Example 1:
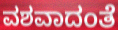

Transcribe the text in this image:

ವಶವಾದಂತೆ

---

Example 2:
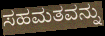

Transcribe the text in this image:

ಸಹಮತವನ್ನು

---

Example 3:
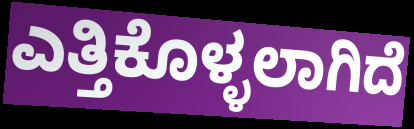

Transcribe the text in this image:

ಎತ್ತಿಕೊಳ್ಳಲಾಗಿದೆ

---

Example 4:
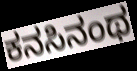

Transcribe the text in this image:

ಕನಸಿನಂಥ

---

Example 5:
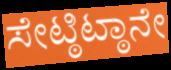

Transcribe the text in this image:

ಸೇಟ್ಠಿಟ್ಠಾನೇ